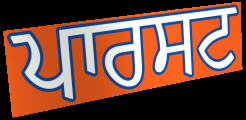
ਪਾਰਸਟ